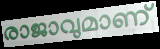
രാജാവുമാണ്